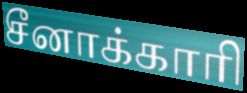
சீனாக்காரி